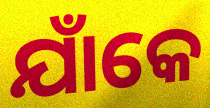
ଯାଁକେ